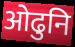
ओढुनि